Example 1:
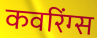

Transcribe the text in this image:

कवरिंग्स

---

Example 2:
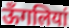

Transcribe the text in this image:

ऊँगलियां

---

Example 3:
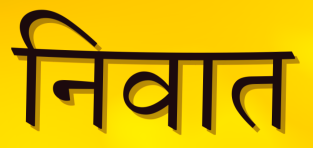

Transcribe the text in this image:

निवात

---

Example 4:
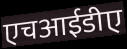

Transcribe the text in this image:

एचआईडीए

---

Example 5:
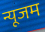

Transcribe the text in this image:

न्यूजम